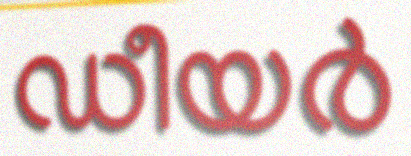
ഡീയർ